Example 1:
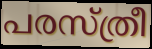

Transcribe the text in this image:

പരസ്ത്രീ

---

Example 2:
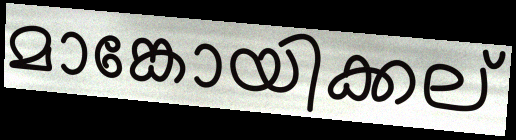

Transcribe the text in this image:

മാങ്കോയിക്കല്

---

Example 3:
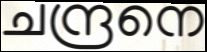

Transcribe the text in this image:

ചന്ദ്രനെ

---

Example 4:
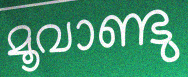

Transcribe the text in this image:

മൂവാണ്ടു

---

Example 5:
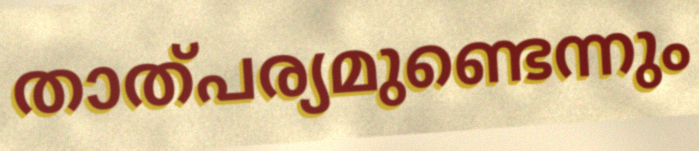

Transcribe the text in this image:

താത്പര്യമുണ്ടെന്നും